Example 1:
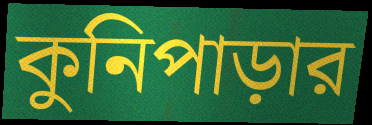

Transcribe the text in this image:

কুনিপাড়ার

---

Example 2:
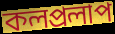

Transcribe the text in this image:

কলপ্রলাপ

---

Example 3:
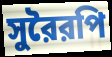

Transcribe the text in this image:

সুরৈরপি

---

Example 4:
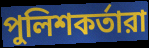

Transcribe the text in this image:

পুলিশকর্তারা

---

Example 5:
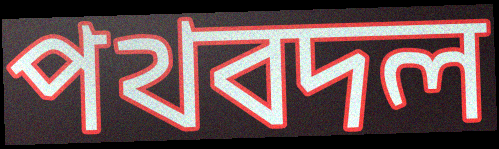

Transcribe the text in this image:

পথবদল